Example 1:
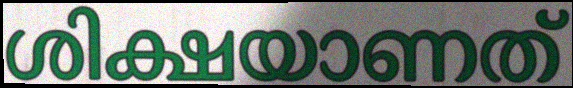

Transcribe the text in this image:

ശിക്ഷയാണത്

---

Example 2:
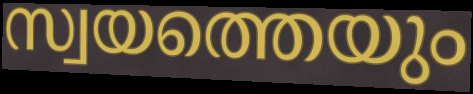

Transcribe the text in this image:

സ്വയത്തെയും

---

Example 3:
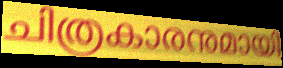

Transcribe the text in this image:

ചിത്രകാരനുമായി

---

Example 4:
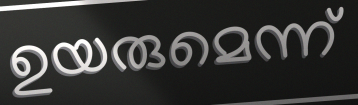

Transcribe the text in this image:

ഉയരുമെന്ന്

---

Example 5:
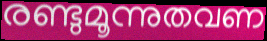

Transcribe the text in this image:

രണ്ടുമൂന്നുതവണ